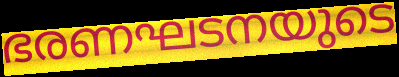
ഭരണഘടനയുടെ